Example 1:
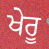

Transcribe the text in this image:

ਖੇਰੂ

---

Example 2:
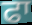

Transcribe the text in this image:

ਫਾ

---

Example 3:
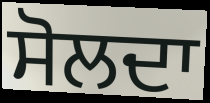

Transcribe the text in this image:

ਸੋਲਦਾ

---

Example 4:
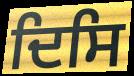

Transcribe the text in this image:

ਦਿਸਿ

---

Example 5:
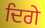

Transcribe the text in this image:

ਦਿਗੇ